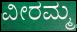
ವೀರಮ್ಮ